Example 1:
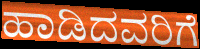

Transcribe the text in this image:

ಹಾಡಿದವರಿಗೆ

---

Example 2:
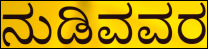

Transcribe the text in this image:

ನುಡಿವವರ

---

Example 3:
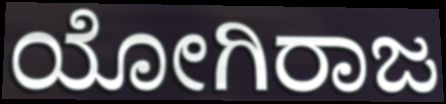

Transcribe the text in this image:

ಯೋಗಿರಾಜ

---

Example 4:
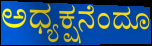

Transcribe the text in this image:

ಅಧ್ಯಕ್ಷನೆಂದೂ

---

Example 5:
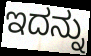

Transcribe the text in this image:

ಇದನ್ನು